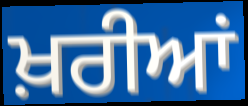
ਖ਼ਰੀਆਂ